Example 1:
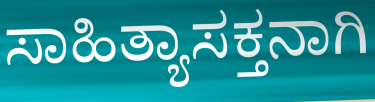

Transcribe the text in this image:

ಸಾಹಿತ್ಯಾಸಕ್ತನಾಗಿ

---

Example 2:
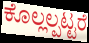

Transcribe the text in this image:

ಕೊಲ್ಲಲ್ಪಟ್ಟರೆ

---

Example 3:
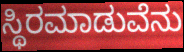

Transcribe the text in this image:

ಸ್ಥಿರಮಾಡುವೆನು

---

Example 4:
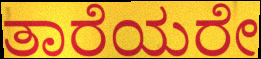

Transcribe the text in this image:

ತಾರೆಯರೇ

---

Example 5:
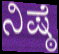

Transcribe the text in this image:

ನಿಷ್ಠೆ